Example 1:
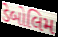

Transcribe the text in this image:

ડેબોલિમ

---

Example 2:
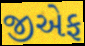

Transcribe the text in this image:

જીએફ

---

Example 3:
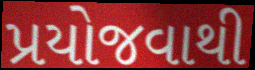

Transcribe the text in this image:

પ્રયોજવાથી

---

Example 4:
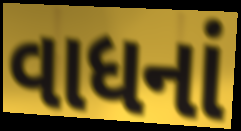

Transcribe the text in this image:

વાધનાં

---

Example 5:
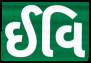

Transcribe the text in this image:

ઈવિ